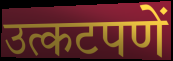
उत्कटपणें